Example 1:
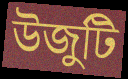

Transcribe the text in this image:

উজুটি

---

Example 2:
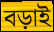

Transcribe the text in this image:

বড়াই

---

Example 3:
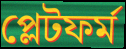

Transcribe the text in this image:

প্লেটফৰ্ম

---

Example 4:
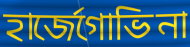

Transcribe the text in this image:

হাৰ্জেগোভিনা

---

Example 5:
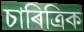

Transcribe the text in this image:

চাৰিত্ৰিক